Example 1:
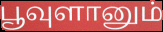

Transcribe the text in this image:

பூவுளானும்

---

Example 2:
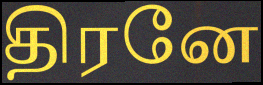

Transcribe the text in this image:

திரனே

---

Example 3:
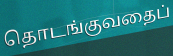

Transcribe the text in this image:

தொடங்குவதைப்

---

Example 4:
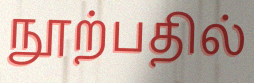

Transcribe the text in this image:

நூற்பதில்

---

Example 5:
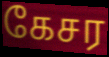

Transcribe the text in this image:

கேசர